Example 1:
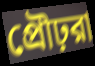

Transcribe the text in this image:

প্রৌঢ়রা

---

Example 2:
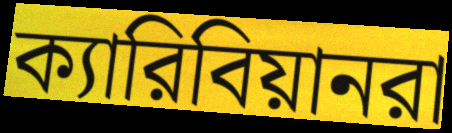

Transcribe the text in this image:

ক্যারিবিয়ানরা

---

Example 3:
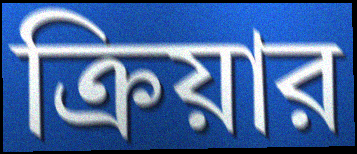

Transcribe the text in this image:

ক্রিয়ার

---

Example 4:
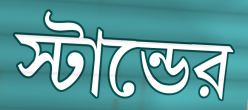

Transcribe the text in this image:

স্টান্ডের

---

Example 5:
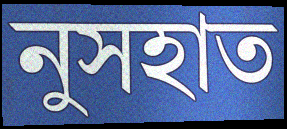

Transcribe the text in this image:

নুসহাত